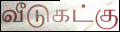
வீடுகட்கு